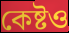
কেষ্টও